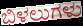
ಬಿಳಲುಗಳು